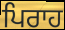
ਪਿਰਾਹ